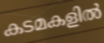
കടമകളിൽ